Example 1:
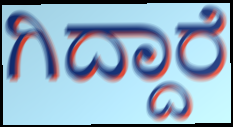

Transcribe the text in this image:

ಗಿದ್ದಾರೆ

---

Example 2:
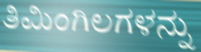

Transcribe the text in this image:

ತಿಮಿಂಗಿಲಗಳನ್ನು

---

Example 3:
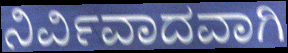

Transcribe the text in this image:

ನಿರ್ವಿವಾದವಾಗಿ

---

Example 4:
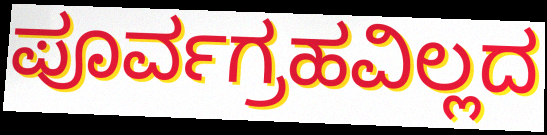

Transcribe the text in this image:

ಪೂರ್ವಗ್ರಹವಿಲ್ಲದ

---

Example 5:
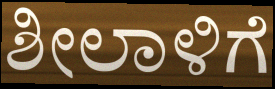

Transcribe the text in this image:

ಶೀಲಾಳಿಗೆ